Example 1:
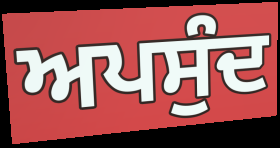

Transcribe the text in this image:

ਅਪਸੁੰਦ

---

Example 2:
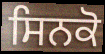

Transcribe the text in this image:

ਸਿਨਕੋ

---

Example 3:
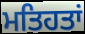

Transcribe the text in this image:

ਮਤਿਹਤਾਂ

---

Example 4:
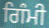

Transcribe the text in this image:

ਗਿੰਮੀ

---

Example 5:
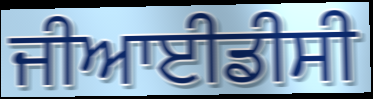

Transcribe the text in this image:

ਜੀਆਈਡੀਸੀ